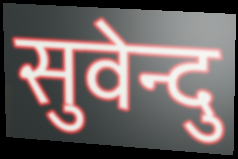
सुवेन्दु